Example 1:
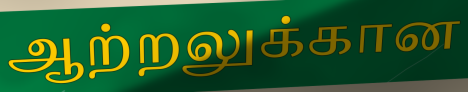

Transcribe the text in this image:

ஆற்றலுக்கான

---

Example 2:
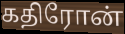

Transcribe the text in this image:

கதிரோன்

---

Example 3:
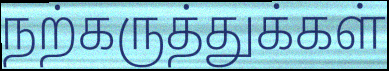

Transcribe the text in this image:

நற்கருத்துக்கள்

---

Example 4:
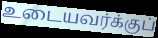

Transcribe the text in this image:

உடையவர்க்குப்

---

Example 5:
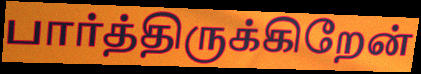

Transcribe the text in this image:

பார்த்திருக்கிறேன்